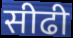
सीढी